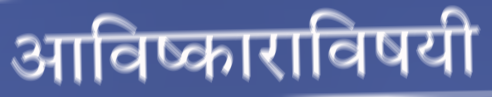
आविष्काराविषयी